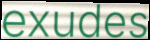
exudes